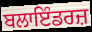
ਬਲਾਇੰਡਰਜ਼